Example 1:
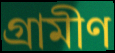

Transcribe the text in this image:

গ্রামীণ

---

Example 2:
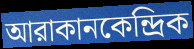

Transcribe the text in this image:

আরাকানকেন্দ্রিক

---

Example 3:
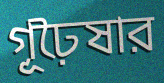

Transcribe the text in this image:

গূঢ়ৈষার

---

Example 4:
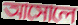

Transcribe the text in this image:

আসোলে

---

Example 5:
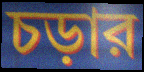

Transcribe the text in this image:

চড়ার